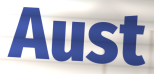
Aust